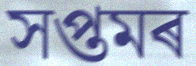
সপ্তমৰ